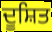
ਦੂਸ਼ਿਤ